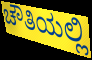
ಚೌತಿಯಲ್ಲಿ